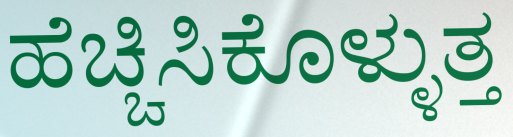
ಹೆಚ್ಚಿಸಿಕೊಳ್ಳುತ್ತ